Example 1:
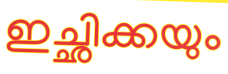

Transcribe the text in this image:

ഇച്ഛിക്കയും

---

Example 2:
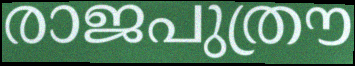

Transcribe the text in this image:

രാജപുത്രൗ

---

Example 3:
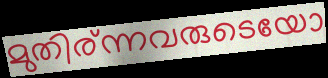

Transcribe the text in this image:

മുതിര്ന്നവരുടെയോ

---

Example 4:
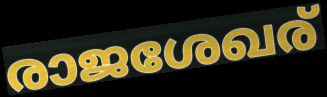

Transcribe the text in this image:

രാജശേഖര്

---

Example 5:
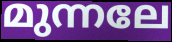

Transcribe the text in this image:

മുന്നലേ